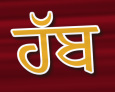
ਹੱਬ